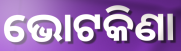
ଭୋଟକିଣା